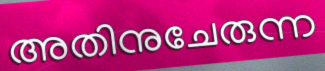
അതിനുചേരുന്ന